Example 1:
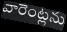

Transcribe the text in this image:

వారెంట్లను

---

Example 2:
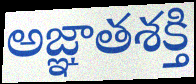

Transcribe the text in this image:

అజ్ఞాతశక్తి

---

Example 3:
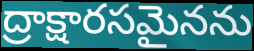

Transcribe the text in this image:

ద్రాక్షారసమైనను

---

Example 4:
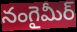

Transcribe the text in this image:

నంగైమీర్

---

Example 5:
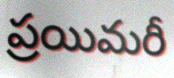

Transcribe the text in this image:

ప్రయిమరీ